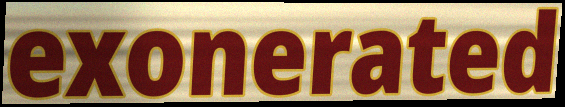
exonerated